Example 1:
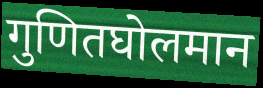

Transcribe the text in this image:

गुणितघोलमान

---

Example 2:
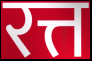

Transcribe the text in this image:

रत्त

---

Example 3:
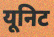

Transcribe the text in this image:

यूनिट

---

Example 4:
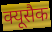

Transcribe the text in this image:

क्यूसैक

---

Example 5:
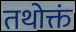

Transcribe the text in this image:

तथोक्तं